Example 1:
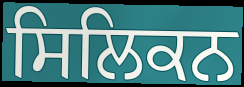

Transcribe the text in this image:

ਸਿਲਿਕਨ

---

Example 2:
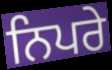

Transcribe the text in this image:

ਨਿਪਰੇ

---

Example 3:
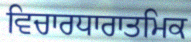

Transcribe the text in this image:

ਵਿਚਾਰਧਾਰਾਤਮਿਕ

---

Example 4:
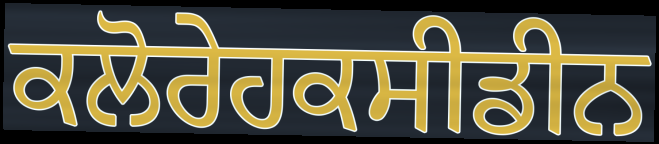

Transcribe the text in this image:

ਕਲੋਰੇਹਕਸੀਡੀਨ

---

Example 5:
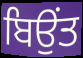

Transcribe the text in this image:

ਬਿਉਂਤ